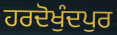
ਹਰਦੋਖੁੰਦਪੁਰ